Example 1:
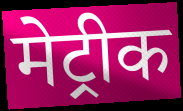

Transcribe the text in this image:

मेट्रीक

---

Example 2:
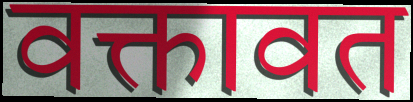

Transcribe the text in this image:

वक्तावत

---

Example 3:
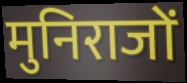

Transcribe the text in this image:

मुनिराजों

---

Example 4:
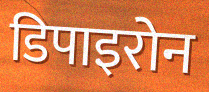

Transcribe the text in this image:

डिपाइरोन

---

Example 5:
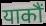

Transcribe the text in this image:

याकौं